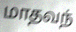
மாதவந்